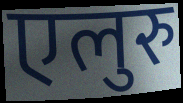
एलुरु